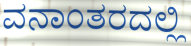
ವನಾಂತರದಲ್ಲಿ